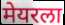
मेयरला